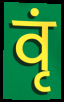
वृं